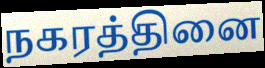
நகரத்தினை